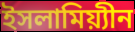
ইসলামিয়্যীন